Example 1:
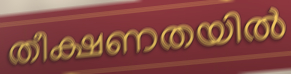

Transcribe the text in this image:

തീക്ഷണതയിൽ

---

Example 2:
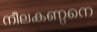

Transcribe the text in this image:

നീലകണ്ഠനെ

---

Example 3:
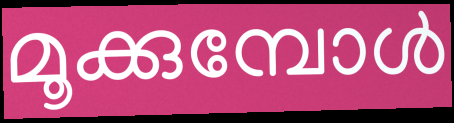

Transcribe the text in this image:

മൂക്കുമ്പോൾ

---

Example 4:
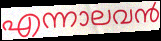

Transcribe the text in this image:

എന്നാലവൻ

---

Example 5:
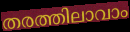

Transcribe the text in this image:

തരത്തിലാവാം